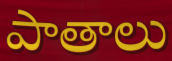
పాతాలు